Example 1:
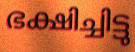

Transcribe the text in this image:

ഭക്ഷിച്ചിട്ടു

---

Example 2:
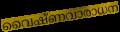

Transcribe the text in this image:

വൈഷ്ണവാരാധന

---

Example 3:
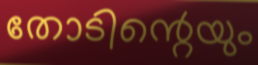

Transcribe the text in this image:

തോടിന്റെയും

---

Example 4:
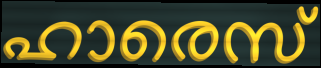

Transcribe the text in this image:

ഹാരെസ്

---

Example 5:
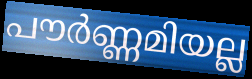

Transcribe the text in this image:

പൗർണ്ണമിയല്ല